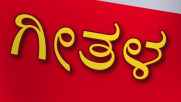
ಗೀತಳ